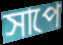
সাপে